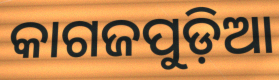
କାଗଜପୁଡ଼ିଆ